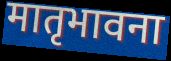
मातृभावना